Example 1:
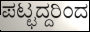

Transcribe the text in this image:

ಪಟ್ಟದ್ದರಿಂದ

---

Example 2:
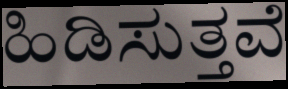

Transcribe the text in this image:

ಹಿಡಿಸುತ್ತವೆ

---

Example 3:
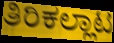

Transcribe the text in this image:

ತಿರಿಕಲ್ಲಾಟ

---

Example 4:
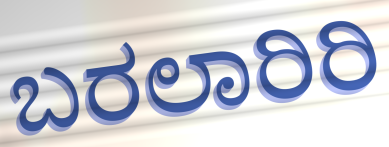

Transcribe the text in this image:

ಬರಲಾರಿರಿ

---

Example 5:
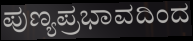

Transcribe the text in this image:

ಪುಣ್ಯಪ್ರಭಾವದಿಂದ